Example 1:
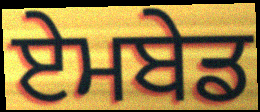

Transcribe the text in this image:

ਏਮਬੇਡ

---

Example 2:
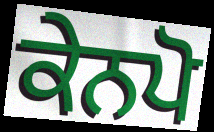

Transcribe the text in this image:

ਕੇਨਪੋ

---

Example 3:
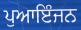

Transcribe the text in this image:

ਪੁਆਇੰਜਨ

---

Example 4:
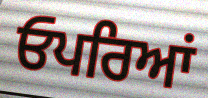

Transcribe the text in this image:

ਓਪਰਿਆਂ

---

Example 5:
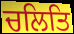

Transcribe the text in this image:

ਚਲਿਤਿ